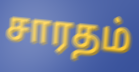
சாரதம்